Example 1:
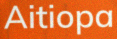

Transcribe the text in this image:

Aitiopa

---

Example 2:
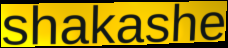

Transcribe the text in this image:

shakashe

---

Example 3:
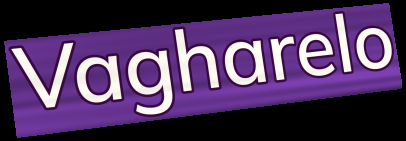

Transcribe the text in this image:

Vagharelo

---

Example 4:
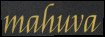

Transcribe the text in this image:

mahuva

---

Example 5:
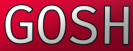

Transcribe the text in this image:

GOSH